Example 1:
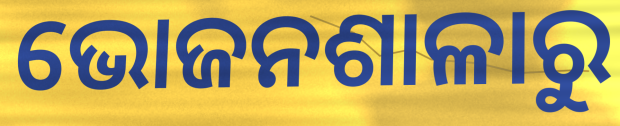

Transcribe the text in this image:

ଭୋଜନଶାଳାରୁ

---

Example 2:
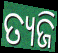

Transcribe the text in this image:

ତ୍ୟଜି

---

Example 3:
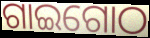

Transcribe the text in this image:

ଗାଇଗୋଠ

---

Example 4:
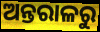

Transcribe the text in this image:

ଅନ୍ତରାଳରୁ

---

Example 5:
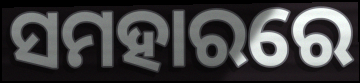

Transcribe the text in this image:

ସମହାରରେ